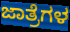
ಜಾತ್ರೆಗಳ